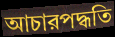
আচারপদ্ধতি